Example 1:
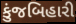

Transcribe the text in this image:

કુંજબિહારી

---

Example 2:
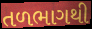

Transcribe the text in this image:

તળભાગથી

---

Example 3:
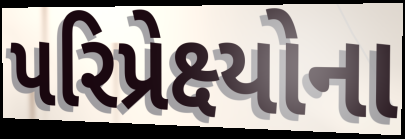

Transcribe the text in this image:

પરિપ્રેક્ષ્યોના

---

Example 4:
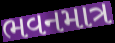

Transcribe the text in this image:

ભવનમાત્ર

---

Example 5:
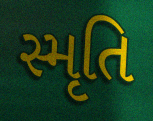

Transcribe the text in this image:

સ્મૃતિ